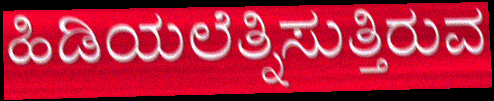
ಹಿಡಿಯಲೆತ್ನಿಸುತ್ತಿರುವ